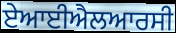
ਏਆਈਐਲਆਰਸੀ